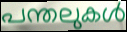
പന്തലുകൾ